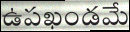
ఉపఖండమే